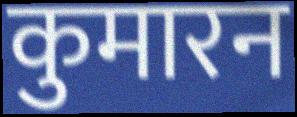
कुमारन